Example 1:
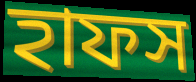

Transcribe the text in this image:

হাফস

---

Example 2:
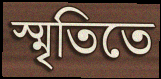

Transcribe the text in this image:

স্মৃতিতে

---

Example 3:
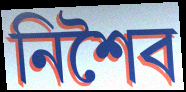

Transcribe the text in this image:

নিশৈব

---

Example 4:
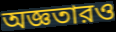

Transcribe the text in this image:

অজ্ঞতারও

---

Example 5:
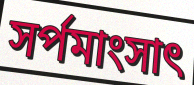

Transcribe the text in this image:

সর্পমাংসাৎ